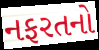
નફરતનો